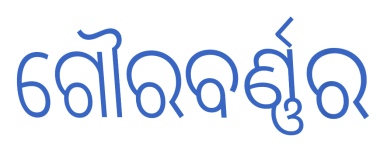
ଗୌରବର୍ଣ୍ଣର